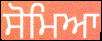
ਸੋਮਿਆ